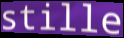
stille